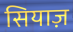
सियाज़